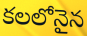
కలలోనైన